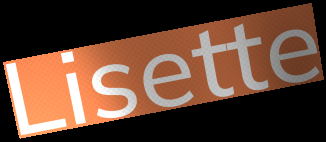
Lisette